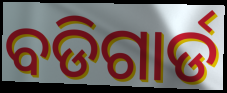
ବଡିଗାର୍ଡ